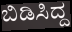
ಬಿಡಿಸಿದ್ದ